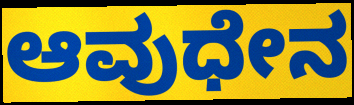
ಆವುಧೇನ